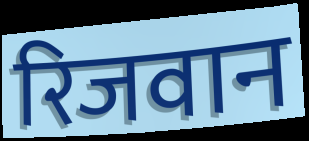
रिजवान